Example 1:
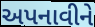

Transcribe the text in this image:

અપનાવીને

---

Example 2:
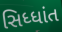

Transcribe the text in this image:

સિધ્ધાંત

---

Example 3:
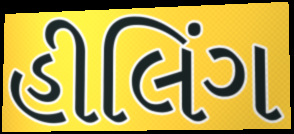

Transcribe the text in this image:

હીલિંગ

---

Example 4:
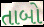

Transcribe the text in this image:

તાબો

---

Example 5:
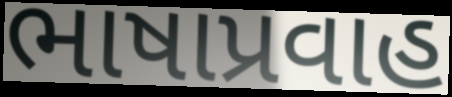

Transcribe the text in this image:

ભાષાપ્રવાહ